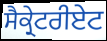
ਸੈਕ੍ਰੇਟਰੀਏਟ